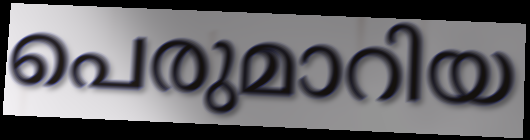
പെരുമാറിയ